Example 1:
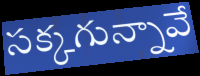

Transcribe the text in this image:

సక్కగున్నావే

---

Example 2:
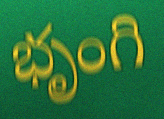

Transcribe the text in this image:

భృంగి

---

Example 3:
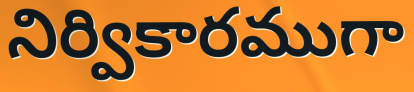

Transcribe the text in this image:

నిర్వికారముగా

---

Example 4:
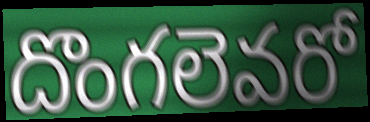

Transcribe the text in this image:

దొంగలెవరో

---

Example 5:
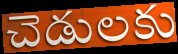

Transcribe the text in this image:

చెడులకు